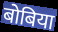
बोबिया